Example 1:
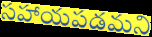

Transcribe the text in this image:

సహాయపడమని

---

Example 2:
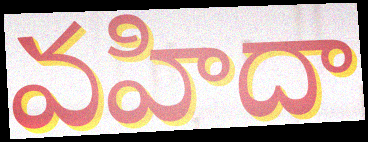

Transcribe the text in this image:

వహిదా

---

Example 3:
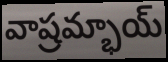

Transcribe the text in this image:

వాష్రమ్భాయ్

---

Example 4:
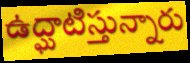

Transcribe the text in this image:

ఉద్ఘాటిస్తున్నారు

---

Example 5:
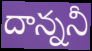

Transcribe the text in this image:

దాన్ననీ